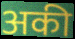
अकी